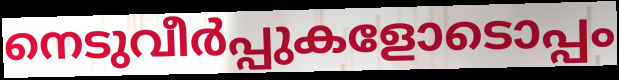
നെടുവീർപ്പുകളോടൊപ്പം